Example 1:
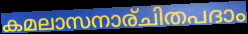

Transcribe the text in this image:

കമലാസനാര്ചിതപദാം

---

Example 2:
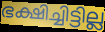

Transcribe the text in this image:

ഭക്ഷിച്ചിട്ടില്ല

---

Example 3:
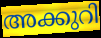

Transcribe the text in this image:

അക്കുറി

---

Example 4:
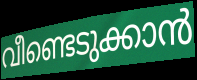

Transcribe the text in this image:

വീണ്ടെടുക്കാൻ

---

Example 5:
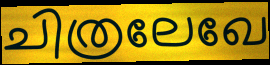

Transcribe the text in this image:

ചിത്രലേഖേ